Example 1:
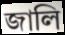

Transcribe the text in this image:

জালি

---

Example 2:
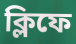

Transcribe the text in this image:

ক্লিফে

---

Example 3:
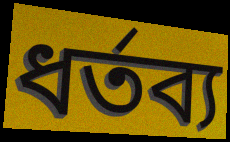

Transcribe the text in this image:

ধর্তব্য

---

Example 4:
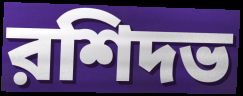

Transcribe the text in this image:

রশিদভ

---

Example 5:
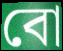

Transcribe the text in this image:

বো